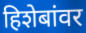
हिशेबांवर